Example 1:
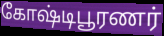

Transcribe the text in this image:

கோஷ்டிபூரணர்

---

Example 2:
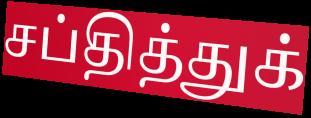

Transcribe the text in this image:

சப்தித்துக்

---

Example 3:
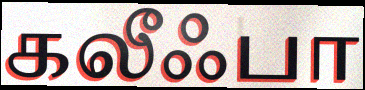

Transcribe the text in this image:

கலீஃபா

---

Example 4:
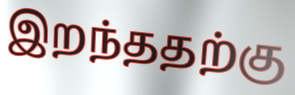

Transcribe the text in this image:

இறந்ததற்கு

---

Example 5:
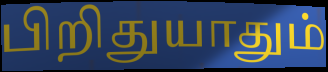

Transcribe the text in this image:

பிறிதுயாதும்